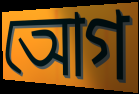
আেগ